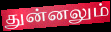
துன்னலும்